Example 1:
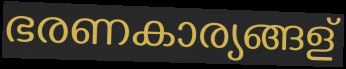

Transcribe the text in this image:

ഭരണകാര്യങ്ങള്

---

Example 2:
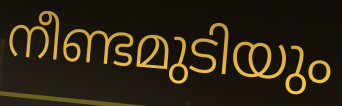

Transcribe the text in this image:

നീണ്ടമുടിയും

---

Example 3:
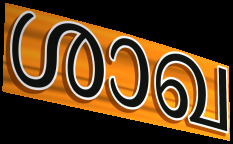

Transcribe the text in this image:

ശാഖ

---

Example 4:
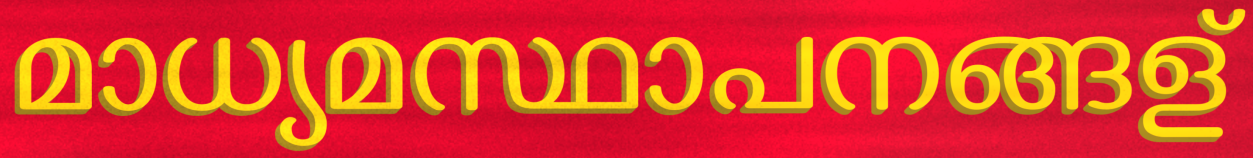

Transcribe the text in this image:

മാധ്യമസ്ഥാപനങ്ങള്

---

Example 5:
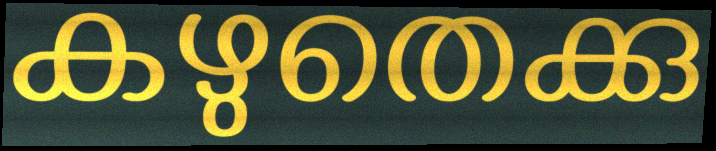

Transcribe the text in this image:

കഴുതെക്കു